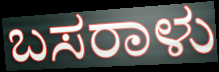
ಬಸರಾಳು